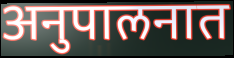
अनुपालनात